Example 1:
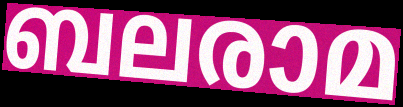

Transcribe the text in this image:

ബലരാമ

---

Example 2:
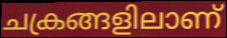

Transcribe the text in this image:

ചക്രങ്ങളിലാണ്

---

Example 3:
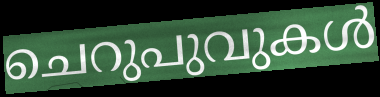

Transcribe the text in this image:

ചെറുപുവുകൾ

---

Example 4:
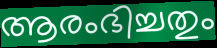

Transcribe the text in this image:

ആരംഭിച്ചതും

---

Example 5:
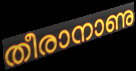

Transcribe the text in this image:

തീരാനാണു